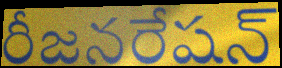
రీజనరేషన్